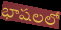
భాషలలో